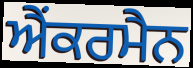
ਐਂਕਰਮੈਨ